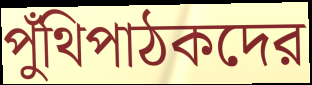
পুঁথিপাঠকদের